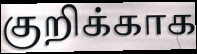
குறிக்காக